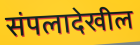
संपलादेखील